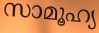
സാമൂഹ്യ